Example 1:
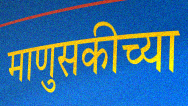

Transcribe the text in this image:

माणुसकीच्या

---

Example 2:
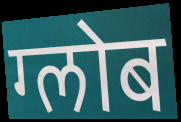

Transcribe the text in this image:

ग्लोब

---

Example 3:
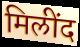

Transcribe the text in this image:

मिलींद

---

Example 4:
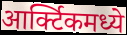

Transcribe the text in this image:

आर्क्टिकमध्ये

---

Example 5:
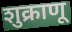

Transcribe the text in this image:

शुक्राणू